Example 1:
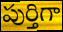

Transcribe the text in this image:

పుర్తిగా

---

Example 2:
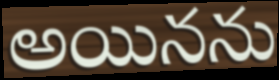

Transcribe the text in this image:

అయినను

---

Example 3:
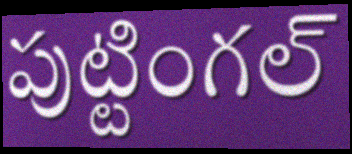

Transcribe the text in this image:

పుట్టింగల్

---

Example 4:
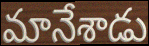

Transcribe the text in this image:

మానేశాడు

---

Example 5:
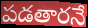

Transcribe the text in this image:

పడతారనే